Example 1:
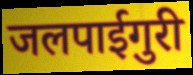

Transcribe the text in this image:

जलपाईगुरी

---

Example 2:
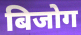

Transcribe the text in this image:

बिजोग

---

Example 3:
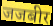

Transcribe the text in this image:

जजबीर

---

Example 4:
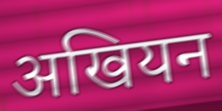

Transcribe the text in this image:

अखियन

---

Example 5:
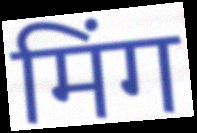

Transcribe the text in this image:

मिंग